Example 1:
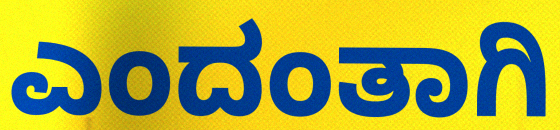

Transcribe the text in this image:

ಎಂದಂತಾಗಿ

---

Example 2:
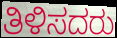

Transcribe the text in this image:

ತಿಳಿಸದರು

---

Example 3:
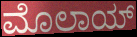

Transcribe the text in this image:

ಮೊಲಾಯ್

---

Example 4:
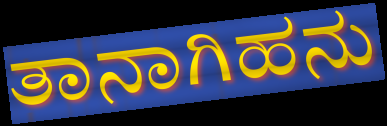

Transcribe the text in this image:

ತಾನಾಗಿಹನು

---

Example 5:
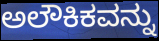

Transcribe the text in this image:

ಅಲೌಕಿಕವನ್ನು